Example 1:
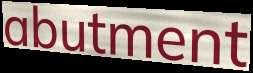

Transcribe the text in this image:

abutment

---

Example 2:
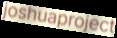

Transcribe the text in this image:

joshuaproject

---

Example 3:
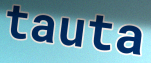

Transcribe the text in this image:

tauta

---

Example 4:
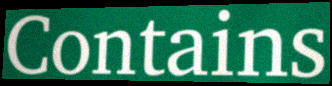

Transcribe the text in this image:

Contains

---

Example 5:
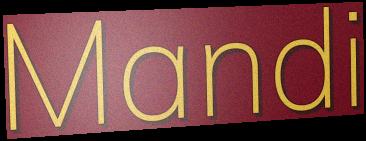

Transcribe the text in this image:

Mandi